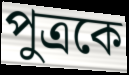
পুত্রকে